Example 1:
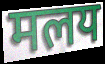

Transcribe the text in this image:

मलय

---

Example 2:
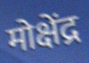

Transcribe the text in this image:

मोक्षेंद्र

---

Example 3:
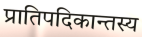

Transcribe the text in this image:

प्रातिपदिकान्तस्य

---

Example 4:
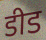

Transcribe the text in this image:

डीड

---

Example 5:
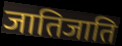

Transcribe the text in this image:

जातिजाति